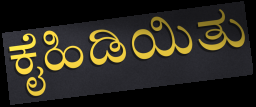
ಕೈಹಿಡಿಯಿತು